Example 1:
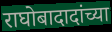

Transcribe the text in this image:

राघोबादादांच्या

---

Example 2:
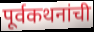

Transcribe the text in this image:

पूर्वकथनांची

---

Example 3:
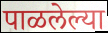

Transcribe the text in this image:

पाळलेल्या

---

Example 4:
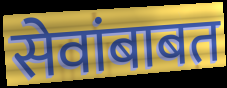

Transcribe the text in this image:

सेवांबाबत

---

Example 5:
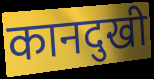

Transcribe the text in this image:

कानदुखी